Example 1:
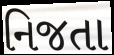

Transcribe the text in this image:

નિજતા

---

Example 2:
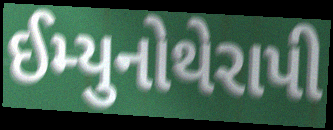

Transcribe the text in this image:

ઈમ્યુનોથેરાપી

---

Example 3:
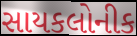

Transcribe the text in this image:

સાયકલોનીક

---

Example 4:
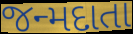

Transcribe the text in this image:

જન્મદાતા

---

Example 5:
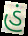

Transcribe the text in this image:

હં